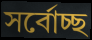
সৰ্বোচ্ছ